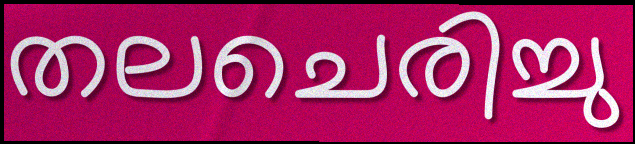
തലചെരിച്ചു